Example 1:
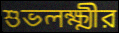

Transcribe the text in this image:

শুভলক্ষ্মীর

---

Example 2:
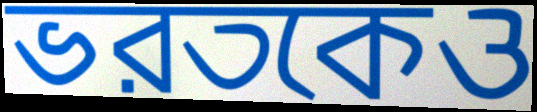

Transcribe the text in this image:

ভরতকেও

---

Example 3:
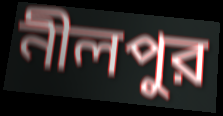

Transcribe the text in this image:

নীলপুর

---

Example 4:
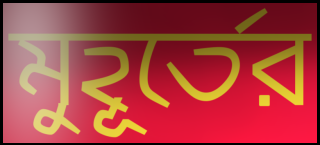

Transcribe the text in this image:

মুহূর্তের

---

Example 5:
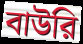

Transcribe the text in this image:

বাউরি